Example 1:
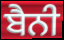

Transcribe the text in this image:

ਬੈਨੀ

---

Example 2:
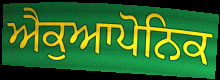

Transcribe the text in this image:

ਐਕੁਆਪੋਨਿਕ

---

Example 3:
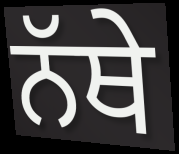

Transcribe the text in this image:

ਨੱਥੇ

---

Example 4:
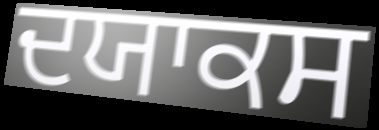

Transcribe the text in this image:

ਦਯਾਕਸ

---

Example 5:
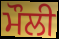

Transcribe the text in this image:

ਮੌਲੀ